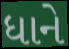
ધાને